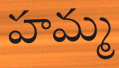
హమ్మ